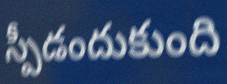
స్పీడందుకుంది